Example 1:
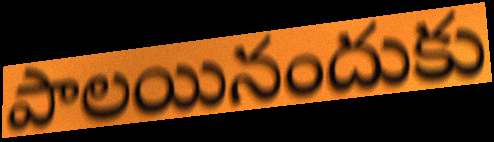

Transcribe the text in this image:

పాలయినందుకు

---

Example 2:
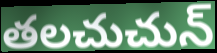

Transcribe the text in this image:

తలచుచున్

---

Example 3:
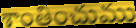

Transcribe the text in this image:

శాంతించుము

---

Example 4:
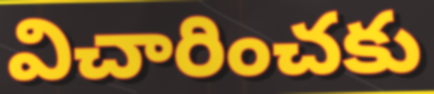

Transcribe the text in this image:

విచారించకు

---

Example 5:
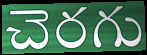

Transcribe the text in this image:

చెరగు